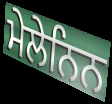
ਮੇਲੇਨਿਨ